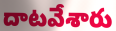
దాటవేశారు